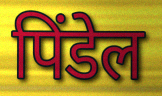
पिंडेल